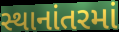
સ્થાનાંતરમાં